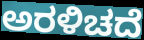
ಅರಳಿಚದೆ